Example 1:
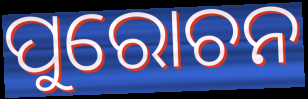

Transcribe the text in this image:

ପୁରୋଚନ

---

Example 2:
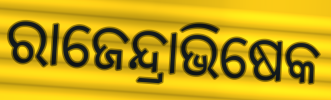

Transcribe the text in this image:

ରାଜେନ୍ଦ୍ରାଭିଷେକ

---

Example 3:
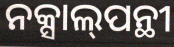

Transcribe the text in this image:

ନକ୍ସାଲ୍‌ପନ୍ଥୀ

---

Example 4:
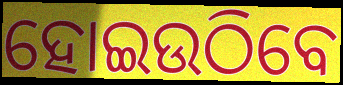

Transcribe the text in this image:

ହୋଇଉଠିବେ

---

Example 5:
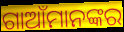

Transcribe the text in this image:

ଗାଆଁମାନଙ୍କର